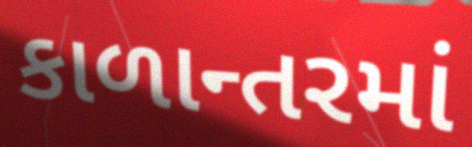
કાળાન્તરમાં